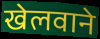
खेलवाने